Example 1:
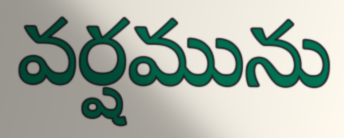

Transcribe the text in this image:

వర్షమును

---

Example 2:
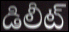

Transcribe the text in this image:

డిలీట్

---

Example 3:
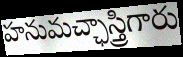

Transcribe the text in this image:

హనుమచ్ఛాస్త్రిగారు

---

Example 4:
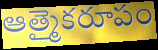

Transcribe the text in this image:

ఆత్మైకరూపం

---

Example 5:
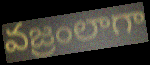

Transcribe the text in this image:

వజ్రంలాగా